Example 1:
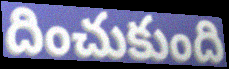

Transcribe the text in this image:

దించుకుంది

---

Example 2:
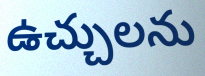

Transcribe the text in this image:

ఉచ్చులను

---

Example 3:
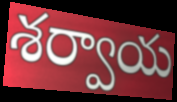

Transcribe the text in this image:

శర్వాయ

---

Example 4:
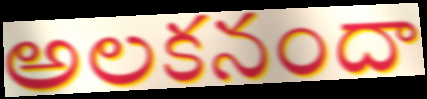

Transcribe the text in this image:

అలకనందా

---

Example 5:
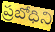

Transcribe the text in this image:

ప్రబోధిని